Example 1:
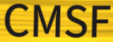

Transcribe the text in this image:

CMSF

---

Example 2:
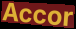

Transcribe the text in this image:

Accor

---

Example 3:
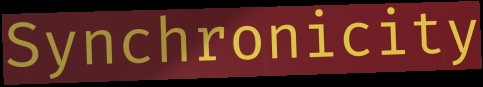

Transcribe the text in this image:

Synchronicity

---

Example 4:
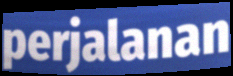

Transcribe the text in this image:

perjalanan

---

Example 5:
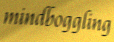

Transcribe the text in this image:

mindboggling